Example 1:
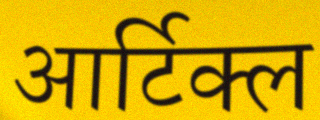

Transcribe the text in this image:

आर्टिक्ल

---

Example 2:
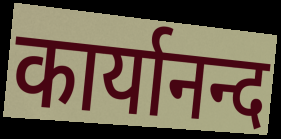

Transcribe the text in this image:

कार्यानन्द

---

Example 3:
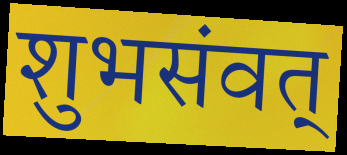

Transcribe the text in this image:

शुभसंवत्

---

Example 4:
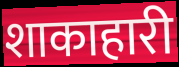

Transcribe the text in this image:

शाकाहारी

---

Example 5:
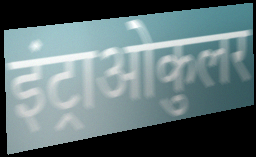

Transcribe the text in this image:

इंट्राओकुलर